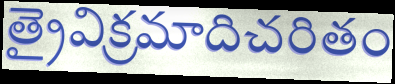
త్రైవిక్రమాదిచరితం